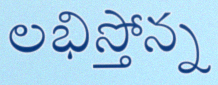
లభిస్తోన్న